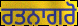
ਰਤਨਾਗਰੋ